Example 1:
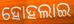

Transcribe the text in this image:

ହୋହଲାଇ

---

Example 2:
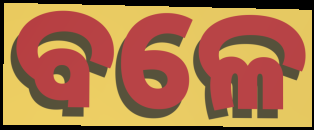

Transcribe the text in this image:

ବଳେ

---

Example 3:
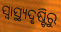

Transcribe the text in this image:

ସ୍ୱାସ୍ଥ୍ୟଦୃଷ୍ଟିରୁ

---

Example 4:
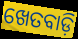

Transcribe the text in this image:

ଖେତବାଡ଼ି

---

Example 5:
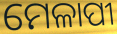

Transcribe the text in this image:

ମେଳାପୀ